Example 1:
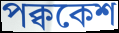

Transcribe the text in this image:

পক্বকেশ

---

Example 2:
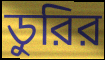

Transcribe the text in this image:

ডুরির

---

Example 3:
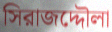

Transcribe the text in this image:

সিরাজদ্দৌলা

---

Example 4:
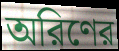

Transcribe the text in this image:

অরিণের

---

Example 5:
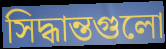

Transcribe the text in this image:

সিদ্ধান্তগুলো